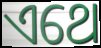
ଏଥେ